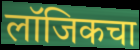
लॉजिकचा